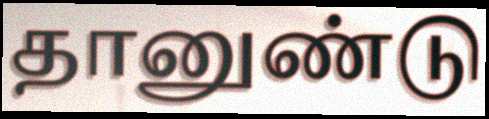
தானுண்டு